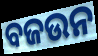
ବଜଉନ